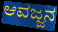
ಆವಜ್ಜನ